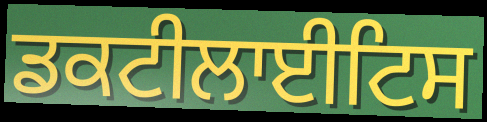
ਡਕਟੀਲਾਈਟਿਸ